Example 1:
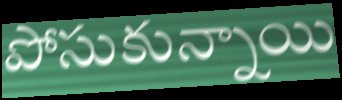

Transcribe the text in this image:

పోసుకున్నాయి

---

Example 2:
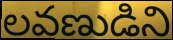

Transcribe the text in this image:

లవణుడిని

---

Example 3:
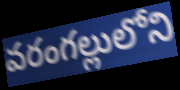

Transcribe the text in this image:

వరంగల్లులోని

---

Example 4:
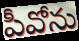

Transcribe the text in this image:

పీవోను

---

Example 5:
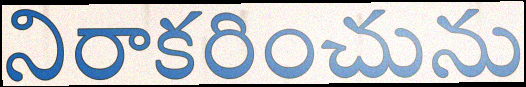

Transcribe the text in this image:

నిరాకరించును